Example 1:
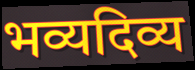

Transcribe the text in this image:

भव्यदिव्य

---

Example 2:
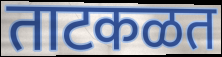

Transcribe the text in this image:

ताटकळत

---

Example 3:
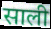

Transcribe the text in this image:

साली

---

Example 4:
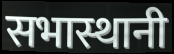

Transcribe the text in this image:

सभास्थानी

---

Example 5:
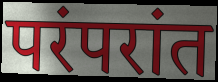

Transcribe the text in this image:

परंपरांत